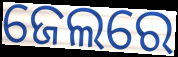
ଜେଲରେ